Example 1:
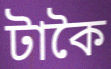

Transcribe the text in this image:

টাকৈ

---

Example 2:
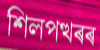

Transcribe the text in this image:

শিলপত্থৰৰ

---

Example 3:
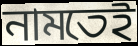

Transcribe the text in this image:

নামতেই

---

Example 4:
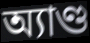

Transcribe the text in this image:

অ্যাণ্ড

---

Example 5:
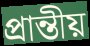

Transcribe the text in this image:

প্ৰান্তীয়